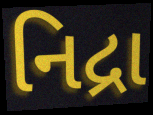
નિદ્રા